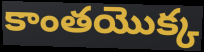
కాంతయొక్క